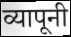
व्यापूनी